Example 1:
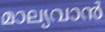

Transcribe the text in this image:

മാല്യവാൻ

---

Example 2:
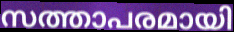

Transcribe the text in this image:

സത്താപരമായി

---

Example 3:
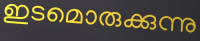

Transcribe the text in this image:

ഇടമൊരുക്കുന്നു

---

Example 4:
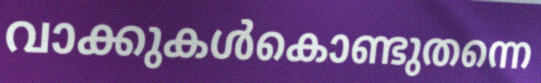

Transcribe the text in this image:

വാക്കുകൾകൊണ്ടുതന്നെ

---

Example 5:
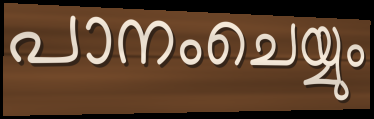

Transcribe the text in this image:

പാനംചെയ്യും